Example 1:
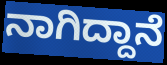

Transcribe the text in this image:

ನಾಗಿದ್ದಾನೆ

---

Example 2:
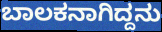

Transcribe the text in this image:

ಬಾಲಕನಾಗಿದ್ದನು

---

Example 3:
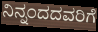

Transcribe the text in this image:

ನಿನ್ನಂದದವರಿಗೆ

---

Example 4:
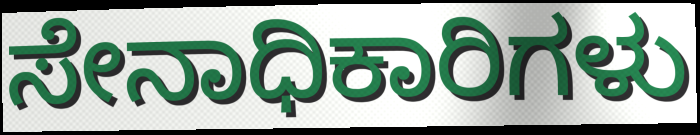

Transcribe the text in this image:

ಸೇನಾಧಿಕಾರಿಗಳು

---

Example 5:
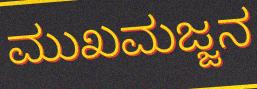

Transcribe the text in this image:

ಮುಖಮಜ್ಜನ